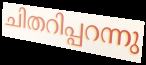
ചിതറിപ്പറന്നു